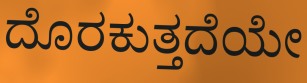
ದೊರಕುತ್ತದೆಯೇ